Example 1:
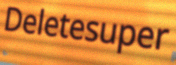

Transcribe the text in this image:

Deletesuper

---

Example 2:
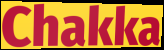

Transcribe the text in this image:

Chakka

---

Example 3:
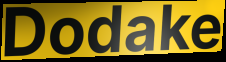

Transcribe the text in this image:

Dodake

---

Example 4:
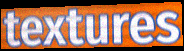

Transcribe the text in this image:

textures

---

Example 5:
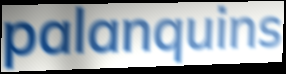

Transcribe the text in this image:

palanquins